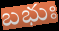
బభుః